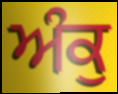
ਅੰਕੁ